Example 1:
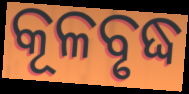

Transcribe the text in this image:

କୂଳବୃଦ୍ଧ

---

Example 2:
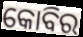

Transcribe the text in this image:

କୋବିର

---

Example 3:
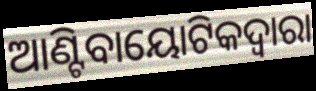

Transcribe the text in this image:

ଆଣ୍ଟିବାୟୋଟିକଦ୍ୱାରା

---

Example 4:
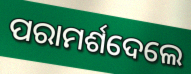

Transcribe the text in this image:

ପରାମର୍ଶଦେଲେ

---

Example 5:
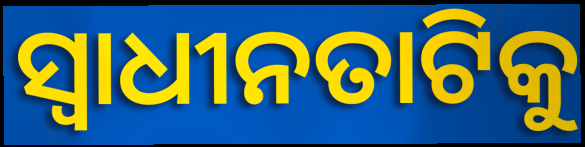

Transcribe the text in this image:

ସ୍ୱାଧୀନତାଟିକୁ